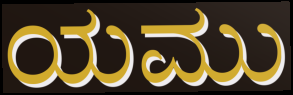
ಯಮು